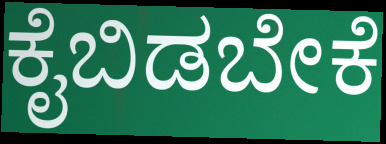
ಕೈಬಿಡಬೇಕೆ